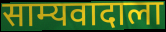
साम्यवादाला